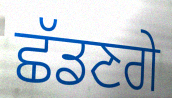
ਛੱਡਣਗੇ